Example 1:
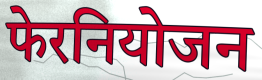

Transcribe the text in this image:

फेरनियोजन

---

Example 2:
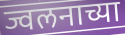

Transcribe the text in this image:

ज्वलनाच्या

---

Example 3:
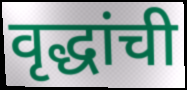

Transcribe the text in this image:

वृद्धांची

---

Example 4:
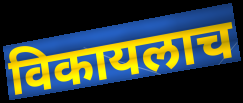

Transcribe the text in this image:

विकायलाच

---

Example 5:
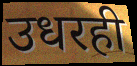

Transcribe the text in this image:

उधरही